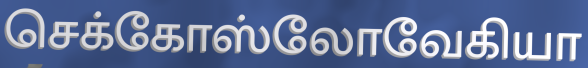
செக்கோஸ்லோவேகியா